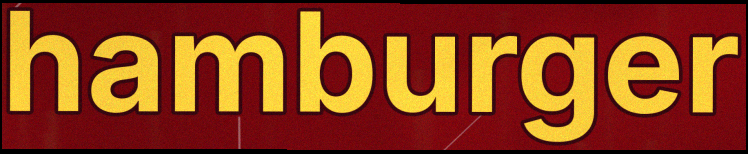
hamburger